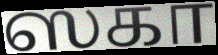
ஸகா